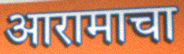
आरामाचा